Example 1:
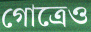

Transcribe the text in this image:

গোত্রেও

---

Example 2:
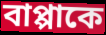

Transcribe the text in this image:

বাপ্পাকে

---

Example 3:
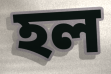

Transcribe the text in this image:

হল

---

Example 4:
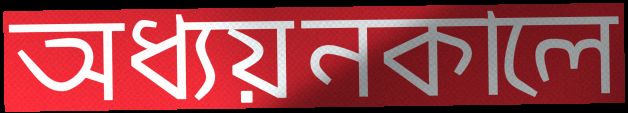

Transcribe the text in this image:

অধ্যয়নকালে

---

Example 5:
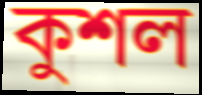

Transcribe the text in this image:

কুশল